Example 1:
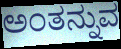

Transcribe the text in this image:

ಅಂತನ್ನುವ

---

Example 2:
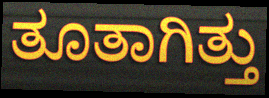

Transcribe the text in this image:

ತೂತಾಗಿತ್ತು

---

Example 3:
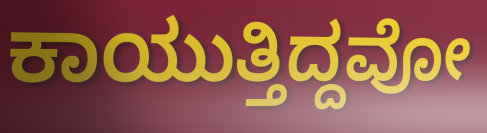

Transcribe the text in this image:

ಕಾಯುತ್ತಿದ್ದವೋ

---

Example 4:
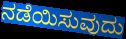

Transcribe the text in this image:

ನಡೆಯಿಸುವುದು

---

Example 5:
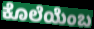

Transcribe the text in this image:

ಕೊಲೆಯೆಂಬ